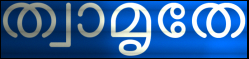
ത്വാമൃതേ